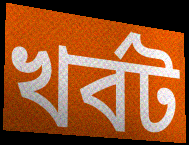
খর্বট